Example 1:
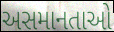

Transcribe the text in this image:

અસમાનતાઓ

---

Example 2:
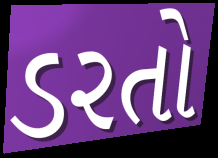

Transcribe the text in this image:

ડરતો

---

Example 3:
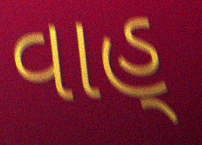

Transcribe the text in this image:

વાહ્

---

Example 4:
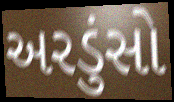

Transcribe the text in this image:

અરડુંસો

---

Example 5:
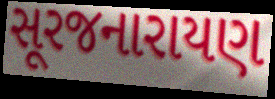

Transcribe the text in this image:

સૂરજનારાયણ